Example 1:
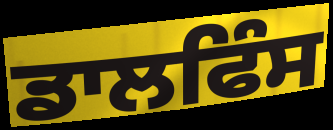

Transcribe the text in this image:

ਡਾਲਫਿੰਸ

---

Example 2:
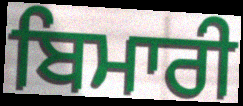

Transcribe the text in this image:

ਬਿਮਾਰੀ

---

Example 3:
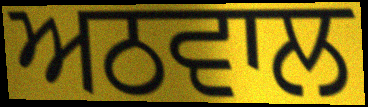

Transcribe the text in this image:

ਅਠਵਾਲ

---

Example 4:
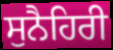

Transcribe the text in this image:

ਸੁਨੈਹਿਰੀ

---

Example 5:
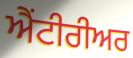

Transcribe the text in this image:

ਐਂਟੀਰੀਅਰ